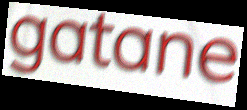
gatane